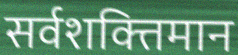
सर्वशक्तिमान